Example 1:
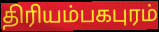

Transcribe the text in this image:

திரியம்பகபுரம்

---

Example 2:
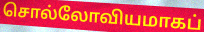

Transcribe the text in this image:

சொல்லோவியமாகப்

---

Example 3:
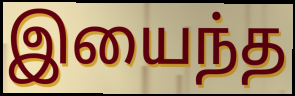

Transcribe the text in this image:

இயைந்த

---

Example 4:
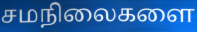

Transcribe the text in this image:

சமநிலைகளை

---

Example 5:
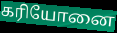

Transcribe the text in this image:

கரியோனை